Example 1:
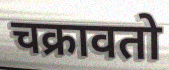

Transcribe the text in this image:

चक्रावतो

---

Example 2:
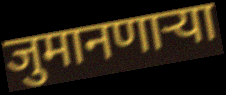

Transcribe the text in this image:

जुमानणार्‍या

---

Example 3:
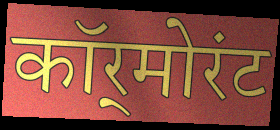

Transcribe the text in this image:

कॉर्मोरंट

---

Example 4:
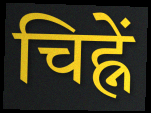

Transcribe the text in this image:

चिह्नें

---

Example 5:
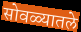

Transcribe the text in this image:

सोवळ्यातले